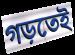
গড়তেই